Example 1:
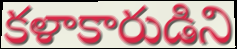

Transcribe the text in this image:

కళాకారుడిని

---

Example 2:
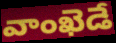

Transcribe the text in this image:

వాంఖెడే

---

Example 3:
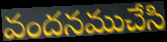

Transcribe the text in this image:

వందనముచేసి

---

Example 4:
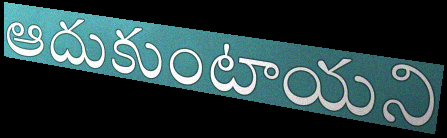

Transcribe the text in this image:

ఆదుకుంటాయని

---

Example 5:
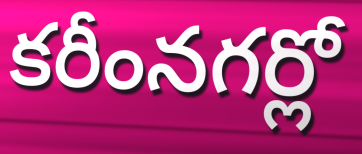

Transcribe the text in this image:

కరీంనగర్లో